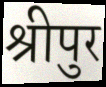
श्रीपुर